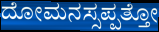
ದೋಮನಸ್ಸಪ್ಪತ್ತೋ